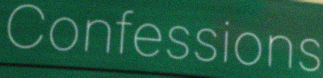
Confessions